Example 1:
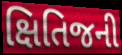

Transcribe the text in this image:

ક્ષિતિજની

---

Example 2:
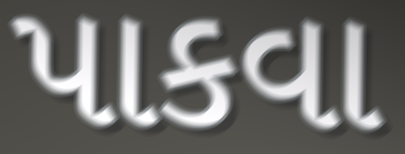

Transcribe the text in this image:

પાકવા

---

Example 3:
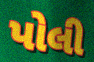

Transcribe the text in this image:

પોલી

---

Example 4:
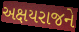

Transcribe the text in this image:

અક્ષયરાજને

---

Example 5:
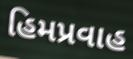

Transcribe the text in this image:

હિમપ્રવાહ